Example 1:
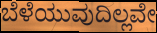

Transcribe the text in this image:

ಬೆಳೆಯುವುದಿಲ್ಲವೇ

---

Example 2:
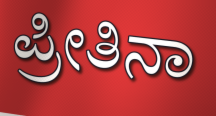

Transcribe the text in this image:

ಪ್ರೀತಿನಾ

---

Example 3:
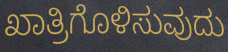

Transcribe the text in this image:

ಖಾತ್ರಿಗೊಳಿಸುವುದು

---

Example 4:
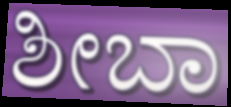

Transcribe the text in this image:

ಶೀಬಾ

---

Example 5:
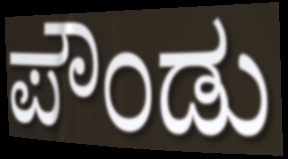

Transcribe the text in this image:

ಪೌಂಡು